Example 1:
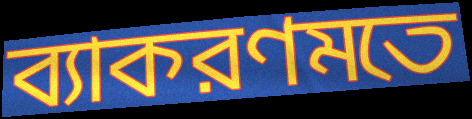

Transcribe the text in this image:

ব্যাকরণমতে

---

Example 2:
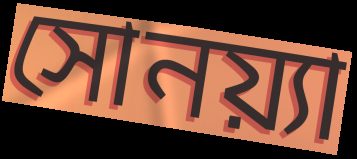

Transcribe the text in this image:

সোনয়্যা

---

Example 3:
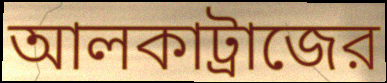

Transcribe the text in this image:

আলকাট্রাজের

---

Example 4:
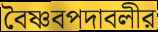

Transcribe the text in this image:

বৈষ্ণবপদাবলীর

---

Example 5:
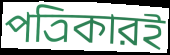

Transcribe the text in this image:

পত্রিকারই